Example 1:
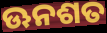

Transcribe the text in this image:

ଊନଶତ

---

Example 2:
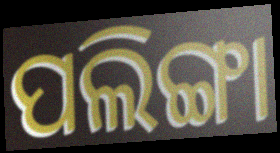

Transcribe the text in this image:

ପଲିଙ୍ଗା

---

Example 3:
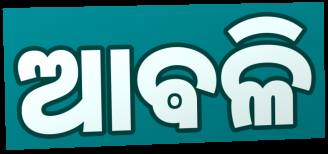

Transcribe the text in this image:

ଆଵଳି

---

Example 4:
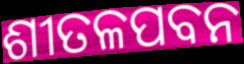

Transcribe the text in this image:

ଶୀତଳପବନ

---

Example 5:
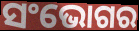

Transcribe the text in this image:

ସଂଭୋଗର